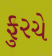
ફુરચે